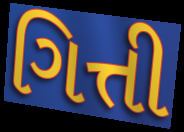
ગિત્તી